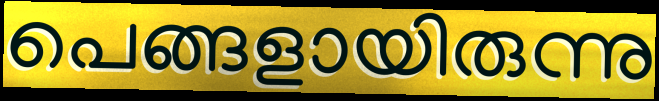
പെങ്ങളായിരുന്നു